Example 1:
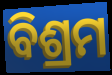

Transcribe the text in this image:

ବିଶ୍ରମ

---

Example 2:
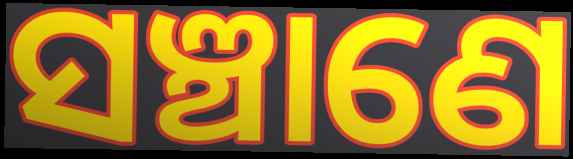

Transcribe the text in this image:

ସଞ୍ଚାଣେ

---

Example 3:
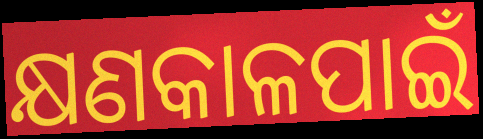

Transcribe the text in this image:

କ୍ଷଣକାଳପାଇଁ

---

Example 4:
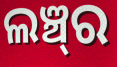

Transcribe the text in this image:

ଲଞ୍ଚ୍‍ର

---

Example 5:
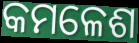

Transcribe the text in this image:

କମଳେଶ